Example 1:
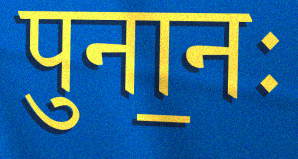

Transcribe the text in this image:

पुना॒नः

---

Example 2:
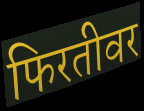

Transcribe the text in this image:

फिरतीवर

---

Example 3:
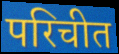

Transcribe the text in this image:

परिचीत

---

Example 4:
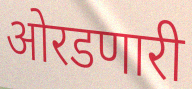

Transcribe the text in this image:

ओरडणारी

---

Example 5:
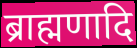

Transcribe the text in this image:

ब्राह्मणादि